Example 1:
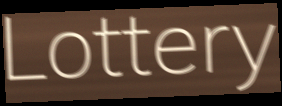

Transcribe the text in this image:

Lottery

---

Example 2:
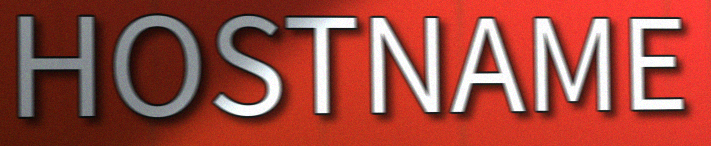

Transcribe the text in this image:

HOSTNAME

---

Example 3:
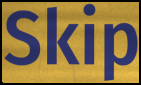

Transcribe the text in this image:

Skip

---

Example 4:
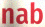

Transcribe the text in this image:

nab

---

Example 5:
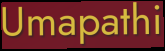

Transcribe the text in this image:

Umapathi